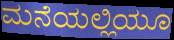
ಮನೆಯಲ್ಲಿಯೂ